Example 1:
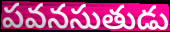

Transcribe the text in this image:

పవనసుతుడు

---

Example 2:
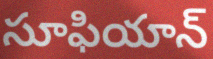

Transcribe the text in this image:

సూఫియాన్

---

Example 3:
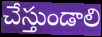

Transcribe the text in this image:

చేస్తుండాలి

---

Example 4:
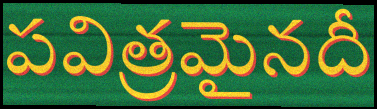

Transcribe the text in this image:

పవిత్రమైనదీ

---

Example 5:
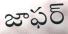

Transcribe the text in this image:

జాఫర్